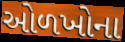
ઓળખોના